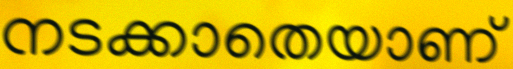
നടക്കാതെയാണ്